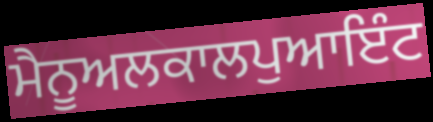
ਮੈਨੂਅਲਕਾਲਪੁਆਇੰਟ